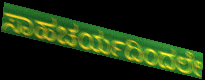
ಸಾಹಚರ್ಯದಿಂದಲೇ